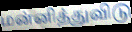
மன்னித்துவிடு